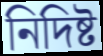
নিদিষ্ট